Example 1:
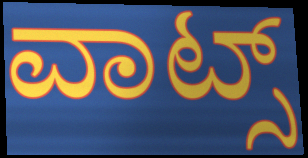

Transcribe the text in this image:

ವಾಟ್ಸ್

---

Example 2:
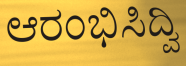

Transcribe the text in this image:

ಆರಂಭಿಸಿದ್ವಿ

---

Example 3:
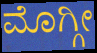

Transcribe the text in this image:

ಮೊಗ್ಗೀ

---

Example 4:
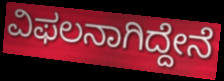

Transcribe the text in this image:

ವಿಫಲನಾಗಿದ್ದೇನೆ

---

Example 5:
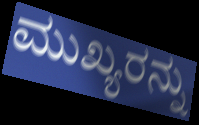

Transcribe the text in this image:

ಮುಖ್ಯರನ್ನು